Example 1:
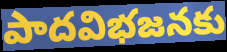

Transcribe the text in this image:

పాదవిభజనకు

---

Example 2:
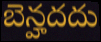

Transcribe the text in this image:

బెన్హదదు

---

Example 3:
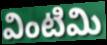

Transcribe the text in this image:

వింటిమి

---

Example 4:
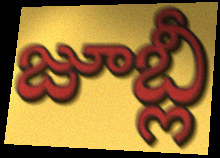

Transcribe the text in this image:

జూబ్లీ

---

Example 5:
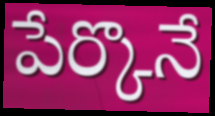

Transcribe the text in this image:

పేర్కొనే